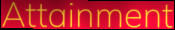
Attainment